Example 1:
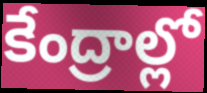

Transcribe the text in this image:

కేంద్రాల్లో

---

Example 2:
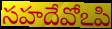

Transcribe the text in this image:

సహదేవోఽపి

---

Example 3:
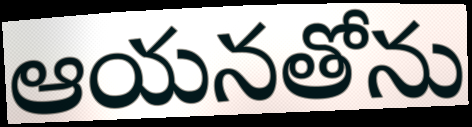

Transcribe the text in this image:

ఆయనతోను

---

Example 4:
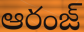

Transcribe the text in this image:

ఆరంజ్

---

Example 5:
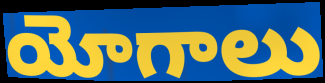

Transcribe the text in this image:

యోగాలు